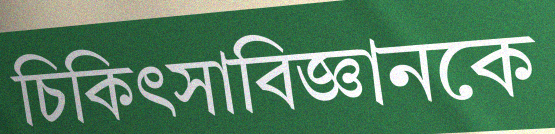
চিকিৎসাবিজ্ঞানকে